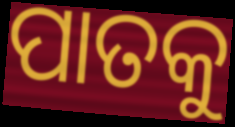
ପାତକୁ